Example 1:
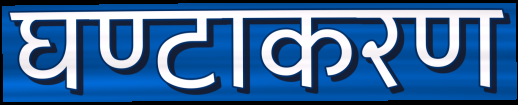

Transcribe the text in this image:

घण्टाकरण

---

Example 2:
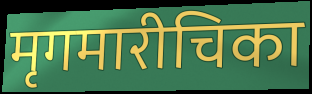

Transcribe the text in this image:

मृगमारीचिका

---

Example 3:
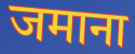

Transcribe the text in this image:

जमाना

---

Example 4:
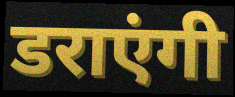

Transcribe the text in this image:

डराएंगी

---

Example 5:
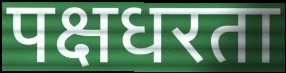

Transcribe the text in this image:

पक्षधरता